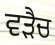
ਵੜੈਚ